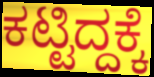
ಕಟ್ಟಿದ್ದಕ್ಕೆ